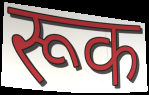
रूक